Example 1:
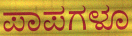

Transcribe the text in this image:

ಪಾಪಗಳೂ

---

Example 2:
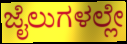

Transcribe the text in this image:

ಜೈಲುಗಳಲ್ಲೇ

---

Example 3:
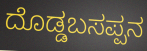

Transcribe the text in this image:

ದೊಡ್ಡಬಸಪ್ಪನ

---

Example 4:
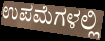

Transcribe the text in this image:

ಉಪಮೆಗಳಲ್ಲಿ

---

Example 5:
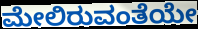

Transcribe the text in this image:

ಮೇಲಿರುವಂತೆಯೇ